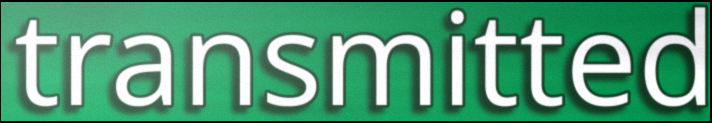
transmitted